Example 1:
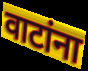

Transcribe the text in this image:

वाटांना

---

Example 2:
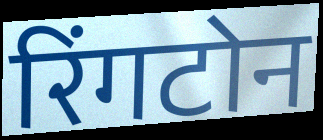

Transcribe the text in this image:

रिंगटोन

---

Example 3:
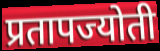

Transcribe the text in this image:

प्रतापज्योती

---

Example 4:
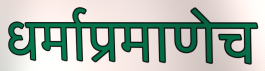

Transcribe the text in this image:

धर्माप्रमाणेच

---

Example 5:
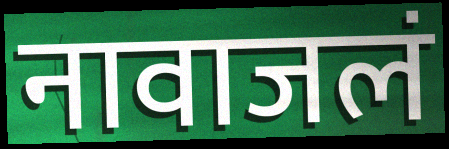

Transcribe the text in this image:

नावाजलं